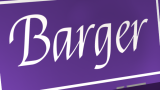
Barger